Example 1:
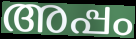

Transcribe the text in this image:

അപ്പം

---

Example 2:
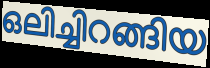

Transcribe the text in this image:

ഒലിച്ചിറങ്ങിയ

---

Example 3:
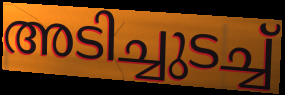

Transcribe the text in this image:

അടിച്ചുടച്ച്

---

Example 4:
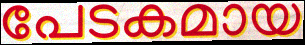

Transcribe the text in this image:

പേടകമായ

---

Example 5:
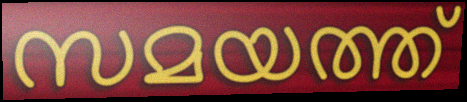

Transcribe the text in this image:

സമയത്ത്